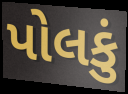
પોલકું